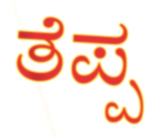
ತೆಪ್ಪ